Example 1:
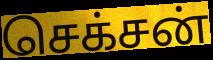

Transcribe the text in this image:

செக்சன்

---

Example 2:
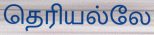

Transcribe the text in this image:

தெரியல்லே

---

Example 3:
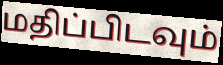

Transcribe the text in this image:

மதிப்பிடவும்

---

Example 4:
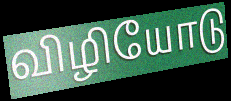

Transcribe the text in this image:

விழியோடு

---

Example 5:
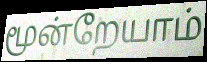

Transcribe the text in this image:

மூன்றேயாம்